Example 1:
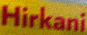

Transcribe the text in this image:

Hirkani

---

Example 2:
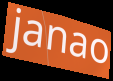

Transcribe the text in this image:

janao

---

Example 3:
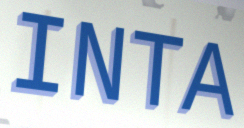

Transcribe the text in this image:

INTA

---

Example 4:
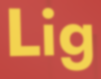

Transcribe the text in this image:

Lig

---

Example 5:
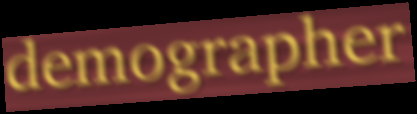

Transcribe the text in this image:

demographer